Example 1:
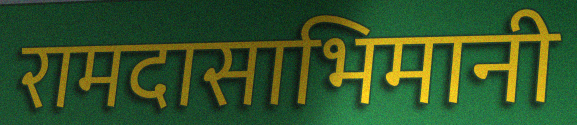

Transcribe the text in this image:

रामदासाभिमानी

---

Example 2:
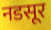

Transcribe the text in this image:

नडसूर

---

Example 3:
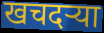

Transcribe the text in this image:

खचदऱ्या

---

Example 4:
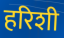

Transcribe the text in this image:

हरिशी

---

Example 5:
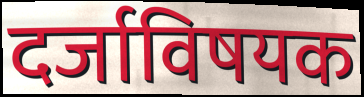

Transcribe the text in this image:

दर्जाविषयक